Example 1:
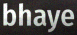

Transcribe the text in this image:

bhaye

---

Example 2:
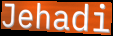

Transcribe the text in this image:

Jehadi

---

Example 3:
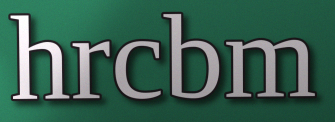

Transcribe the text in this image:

hrcbm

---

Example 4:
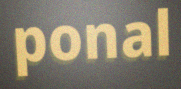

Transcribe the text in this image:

ponal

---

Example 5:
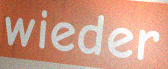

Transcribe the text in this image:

wieder